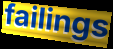
failings